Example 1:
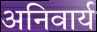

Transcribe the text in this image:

अनिवार्य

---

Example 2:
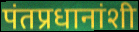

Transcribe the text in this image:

पंतप्रधानांशी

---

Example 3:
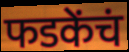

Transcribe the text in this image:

फडकेंचं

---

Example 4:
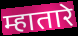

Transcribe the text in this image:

म्हातारे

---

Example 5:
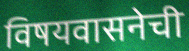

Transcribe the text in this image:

विषयवासनेची